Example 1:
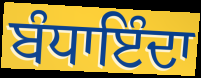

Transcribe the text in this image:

ਬੰਧਾਇੰਦਾ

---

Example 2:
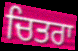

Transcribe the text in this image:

ਚਿਤਰਾ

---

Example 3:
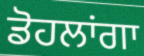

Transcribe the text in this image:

ਡੋਹਲਾਂਗਾ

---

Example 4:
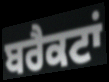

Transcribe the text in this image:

ਬਰੈਕਟਾਂ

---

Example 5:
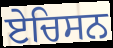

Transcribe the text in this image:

ਏਚਿਸਨ